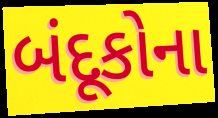
બંદૂકોના